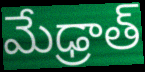
మేఢ్రాత్